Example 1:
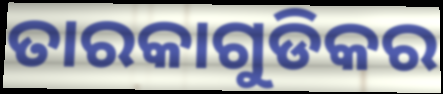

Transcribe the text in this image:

ତାରକାଗୁଡିକର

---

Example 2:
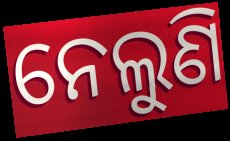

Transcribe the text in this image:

ନେଲୁଣି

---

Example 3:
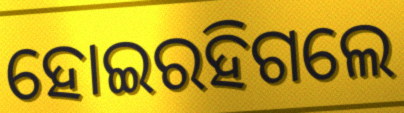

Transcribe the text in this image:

ହୋଇରହିଗଲେ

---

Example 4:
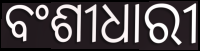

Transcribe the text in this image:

ବଂଶୀଧାରୀ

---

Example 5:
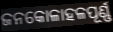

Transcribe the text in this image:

ଜନକୋଳାହଳପୂର୍ଣ୍ଣ